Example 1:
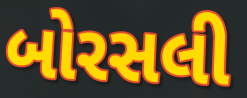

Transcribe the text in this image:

બોરસલી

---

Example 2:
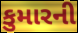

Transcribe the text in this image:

કુમારની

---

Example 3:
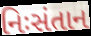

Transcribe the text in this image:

નિઃસંતાન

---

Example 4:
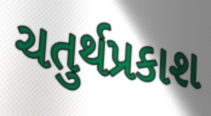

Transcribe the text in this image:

ચતુર્થપ્રકાશ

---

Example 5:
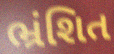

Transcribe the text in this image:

ભ્રંશિત